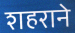
शहराने